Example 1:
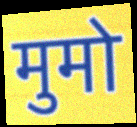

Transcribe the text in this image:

मुमो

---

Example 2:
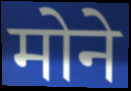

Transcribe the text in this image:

मोने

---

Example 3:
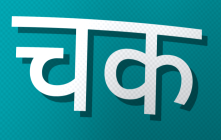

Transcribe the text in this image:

चक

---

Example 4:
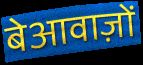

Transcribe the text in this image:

बेआवाज़ों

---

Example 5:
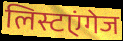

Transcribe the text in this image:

लिस्टएंगेज